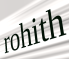
rohith